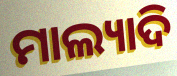
ମାଲ୍ୟାଦି